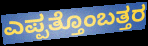
ಎಪ್ಪತ್ತೊಂಬತ್ತರ